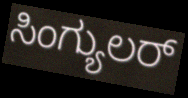
ಸಿಂಗ್ಯುಲರ್